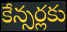
కేన్సర్లకు